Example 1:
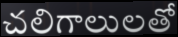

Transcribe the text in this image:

చలిగాలులతో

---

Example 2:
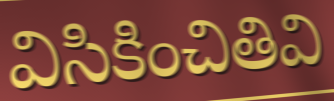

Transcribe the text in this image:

విసికించితివి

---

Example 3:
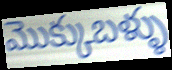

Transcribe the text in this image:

మొక్కుబళ్ళు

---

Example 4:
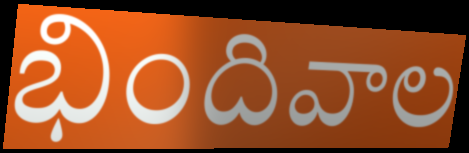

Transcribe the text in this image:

భిందివాల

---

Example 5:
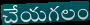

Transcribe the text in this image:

చేయగలం